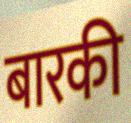
बारकी